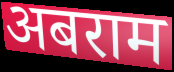
अबराम